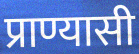
प्राण्यासी